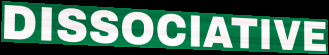
DISSOCIATIVE